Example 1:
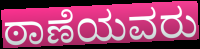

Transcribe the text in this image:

ಠಾಣೆಯವರು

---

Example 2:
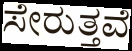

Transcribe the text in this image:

ಸೇರುತ್ತವೆ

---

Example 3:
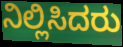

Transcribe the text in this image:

ನಿಲ್ಲಿಸಿದರು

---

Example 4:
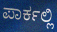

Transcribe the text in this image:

ಪಾರ್ಕಲ್ಲಿ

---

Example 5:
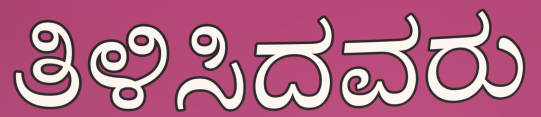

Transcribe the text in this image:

ತಿಳಿಸಿದವರು